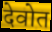
देवोत